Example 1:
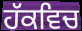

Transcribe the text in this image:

ਹੱਕਵਿਚ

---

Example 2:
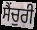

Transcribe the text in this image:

ਸੈਂਚੁਰੀ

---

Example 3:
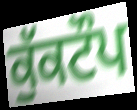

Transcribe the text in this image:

ਕੁੱਕਟੌਪ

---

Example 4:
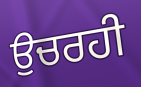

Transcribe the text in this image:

ਉਚਰਹੀ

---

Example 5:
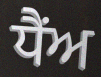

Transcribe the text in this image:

ਧੈਂਅ